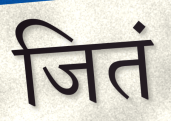
जितं